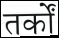
तर्कों